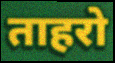
ताहरो